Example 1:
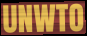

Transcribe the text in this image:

UNWTO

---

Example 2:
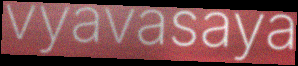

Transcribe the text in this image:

vyavasaya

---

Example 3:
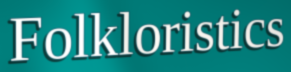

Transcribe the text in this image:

Folkloristics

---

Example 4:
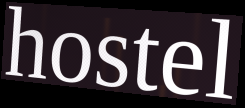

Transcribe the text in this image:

hostel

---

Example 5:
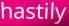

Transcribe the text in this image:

hastily